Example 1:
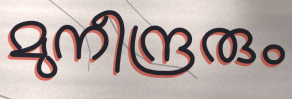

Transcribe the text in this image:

മുനീന്ദ്രരും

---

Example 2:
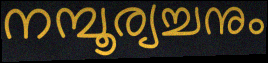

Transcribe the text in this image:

നമ്പൂര്യച്ചനും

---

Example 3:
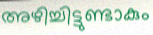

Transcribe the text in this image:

അഴിച്ചിട്ടുണ്ടാകും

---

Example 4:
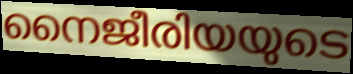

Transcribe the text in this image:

നൈജീരിയയുടെ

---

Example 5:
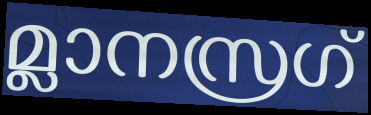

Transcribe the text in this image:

മ്ലാനസ്രഗ്